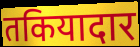
तकियादार